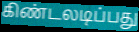
கிண்டலடிப்பது